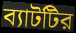
ব্যাটটির